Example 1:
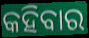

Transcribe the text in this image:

କହିବାର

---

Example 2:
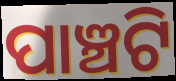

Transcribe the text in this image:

ପାଞ୍ଚଟି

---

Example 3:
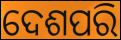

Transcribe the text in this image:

ଦେଶପରି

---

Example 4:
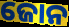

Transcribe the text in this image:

ଜୋନ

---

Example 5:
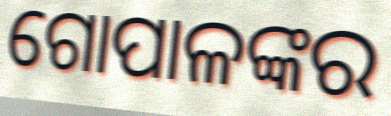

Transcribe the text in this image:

ଗୋପାଳଙ୍କର